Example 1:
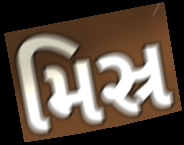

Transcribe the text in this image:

મિસ્ર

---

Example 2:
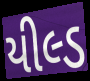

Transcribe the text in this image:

યીલ્ડ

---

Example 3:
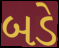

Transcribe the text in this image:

બડે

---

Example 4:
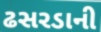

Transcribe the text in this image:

ઢસરડાની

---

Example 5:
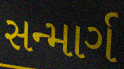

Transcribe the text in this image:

સન્માર્ગ